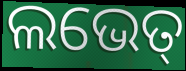
ଲଭେତ୍